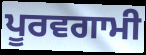
ਪੂਰਵਗਾਮੀ